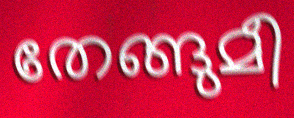
തേങ്ങുമീ